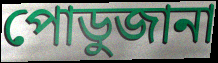
পোডুজানা